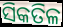
ସିକତିଳ